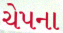
ચેપના